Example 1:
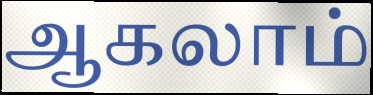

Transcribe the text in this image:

ஆகலாம்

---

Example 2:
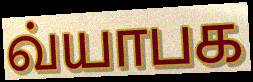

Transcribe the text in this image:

வ்யாபக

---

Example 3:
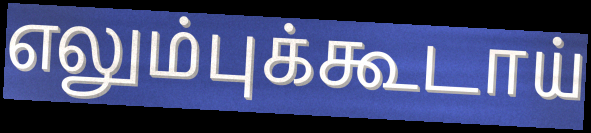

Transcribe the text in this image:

எலும்புக்கூடாய்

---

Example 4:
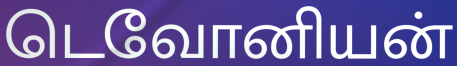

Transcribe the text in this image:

டெவோனியன்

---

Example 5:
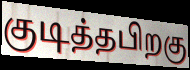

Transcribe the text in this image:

குடித்தபிறகு